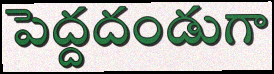
పెద్దదండుగా